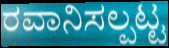
ರವಾನಿಸಲ್ಪಟ್ಟ